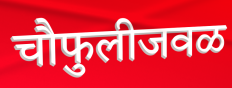
चौफुलीजवळ